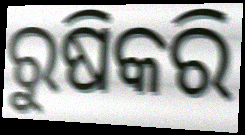
ରୁଷିକରି